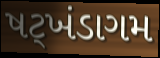
ષટ્ખંડાગમ